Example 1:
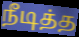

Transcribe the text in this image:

நீடித்த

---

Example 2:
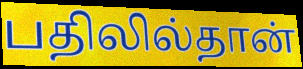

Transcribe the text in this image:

பதிலில்தான்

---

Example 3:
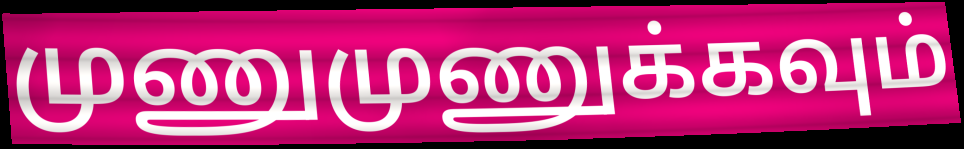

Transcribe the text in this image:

முணுமுணுக்கவும்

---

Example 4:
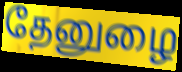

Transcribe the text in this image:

தேனுழை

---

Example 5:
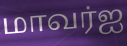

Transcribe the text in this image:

மாவர்ஐ